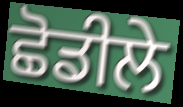
ਛੋਡੀਲੇ